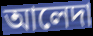
আলেদা